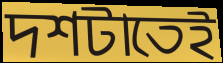
দশটাতেই